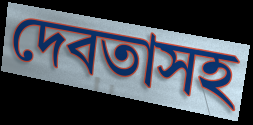
দেবতাসহ